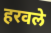
हरवले